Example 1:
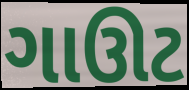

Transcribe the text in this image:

ગાઊટ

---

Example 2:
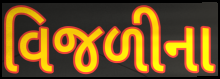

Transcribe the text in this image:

વિજળીના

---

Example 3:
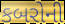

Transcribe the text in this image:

કબરોની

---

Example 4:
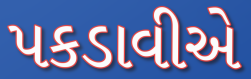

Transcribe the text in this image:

પકડાવીએ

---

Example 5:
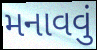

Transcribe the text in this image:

મનાવવું